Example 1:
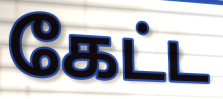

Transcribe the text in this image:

கேட்ட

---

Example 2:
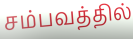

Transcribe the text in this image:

சம்பவத்தில்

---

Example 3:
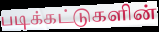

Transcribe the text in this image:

படிக்கட்டுகளின்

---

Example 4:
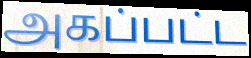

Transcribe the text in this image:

அகப்பட்ட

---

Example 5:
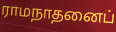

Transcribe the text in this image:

ராமநாதனைப்